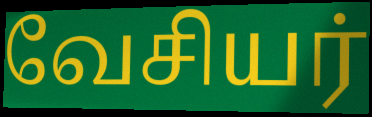
வேசியர்